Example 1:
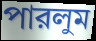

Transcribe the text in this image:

পারলুম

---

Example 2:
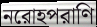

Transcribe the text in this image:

নরোহপরাণি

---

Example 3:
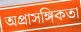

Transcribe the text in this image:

অপ্রাসঙ্গিকতা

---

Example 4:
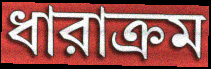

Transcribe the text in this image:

ধারাক্রম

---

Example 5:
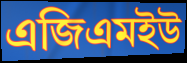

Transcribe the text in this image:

এজিএমইউ